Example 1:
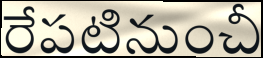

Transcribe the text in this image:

రేపటినుంచీ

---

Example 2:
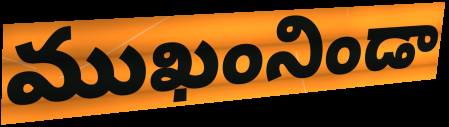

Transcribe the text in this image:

ముఖంనిండా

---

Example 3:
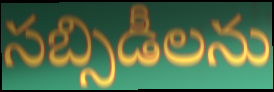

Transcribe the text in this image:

సబ్సిడీలను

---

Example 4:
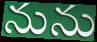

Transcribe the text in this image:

నును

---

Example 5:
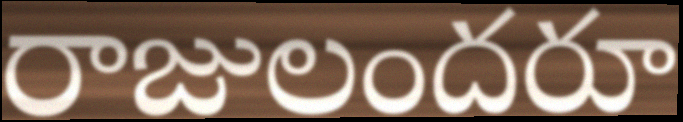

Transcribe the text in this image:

రాజులందరూ